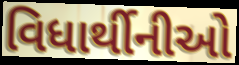
વિધાર્થીનીઓ